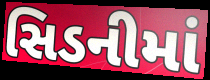
સિડનીમાં